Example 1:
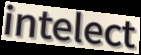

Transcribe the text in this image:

intelect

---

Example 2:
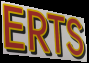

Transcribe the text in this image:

ERTS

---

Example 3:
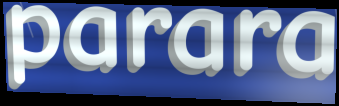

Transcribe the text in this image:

parara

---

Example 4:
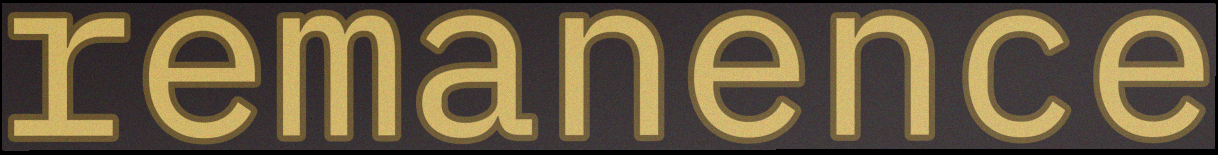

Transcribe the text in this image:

remanence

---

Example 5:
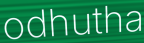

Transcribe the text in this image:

odhutha